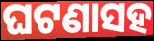
ଘଟଣାସହ